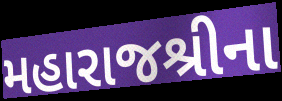
મહારાજશ્રીના